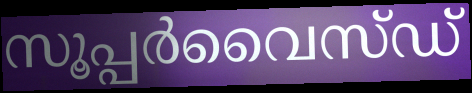
സൂപ്പർവൈസ്ഡ്